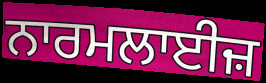
ਨਾਰਮਲਾਈਜ਼